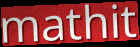
mathit